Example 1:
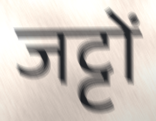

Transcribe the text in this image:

जट्टों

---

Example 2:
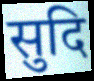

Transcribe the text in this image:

सुदि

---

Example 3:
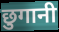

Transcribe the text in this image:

छुगानी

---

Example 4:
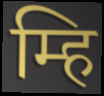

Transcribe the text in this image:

म्हि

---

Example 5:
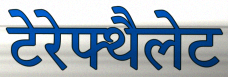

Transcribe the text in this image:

टेरेफ्थैलेट